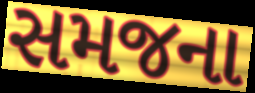
સમજના